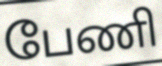
பேணி